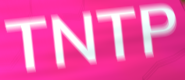
TNTP